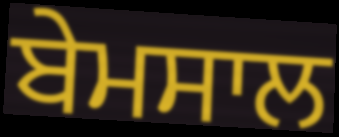
ਬੇਮਸਾਲ